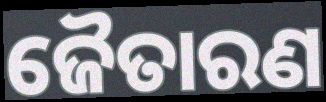
ଜୈତାରଣ